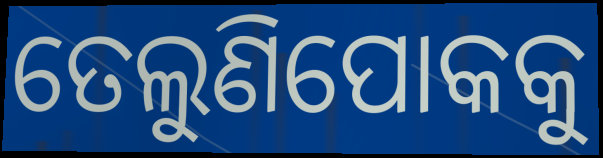
ତେଲୁଣିପୋକକୁ